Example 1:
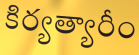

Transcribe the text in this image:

కిర్యత్యారీం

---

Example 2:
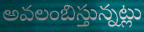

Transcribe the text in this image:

అవలంబిస్తున్నట్లు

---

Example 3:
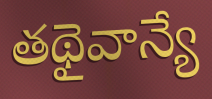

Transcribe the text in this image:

తథైవాన్యే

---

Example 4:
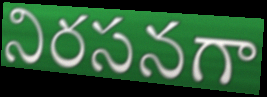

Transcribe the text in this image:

నిరసనగా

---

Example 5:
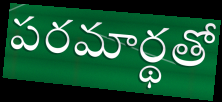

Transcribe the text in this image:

పరమార్థతో